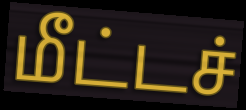
மீட்டச்